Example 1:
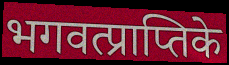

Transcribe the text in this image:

भगवत्प्राप्तिके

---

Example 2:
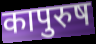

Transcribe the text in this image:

कापुरुष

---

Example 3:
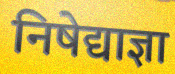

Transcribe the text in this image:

निषेद्याज्ञा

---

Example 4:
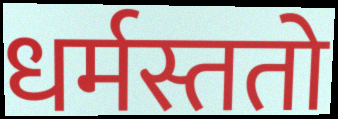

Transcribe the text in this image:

धर्मस्ततो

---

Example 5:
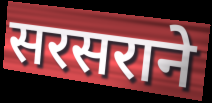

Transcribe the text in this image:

सरसराने